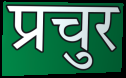
प्रचुर